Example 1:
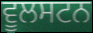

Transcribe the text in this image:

ਵੂਲਸਟਨ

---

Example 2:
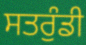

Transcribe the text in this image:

ਸਤਰੁੰਡੀ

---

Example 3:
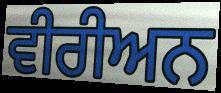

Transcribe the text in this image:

ਵੀਰੀਅਨ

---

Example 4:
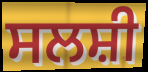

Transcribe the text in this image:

ਸਲਸ਼ੀ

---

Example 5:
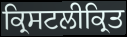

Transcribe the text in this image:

ਕ੍ਰਿਸਟਲੀਕ੍ਰਿਤ